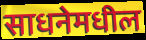
साधनेमधील